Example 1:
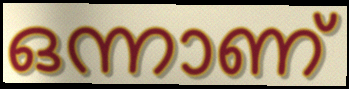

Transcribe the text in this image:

ഒന്നാണ്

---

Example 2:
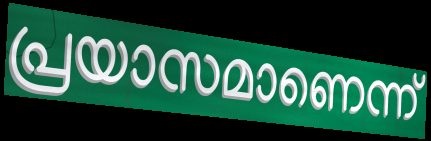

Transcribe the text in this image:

പ്രയാസമാണെന്ന്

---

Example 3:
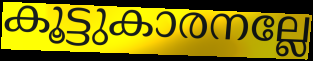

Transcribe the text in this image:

കൂട്ടുകാരനല്ലേ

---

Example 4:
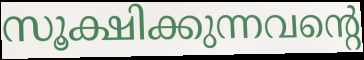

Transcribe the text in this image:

സൂക്ഷിക്കുന്നവന്റെ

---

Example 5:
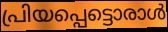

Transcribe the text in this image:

പ്രിയപ്പെട്ടൊരാൾ